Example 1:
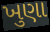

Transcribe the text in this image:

ખુણા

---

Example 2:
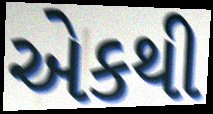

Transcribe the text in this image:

એકથી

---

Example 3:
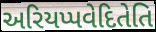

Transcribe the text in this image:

અરિયપ્પવેદિતેતિ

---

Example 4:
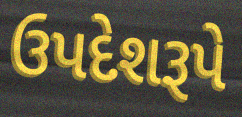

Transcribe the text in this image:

ઉપદેશરૂપે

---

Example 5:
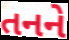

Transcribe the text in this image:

તનને